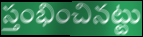
స్తంభించినట్టు